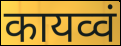
कायव्वं